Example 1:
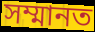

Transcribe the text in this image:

সম্মানত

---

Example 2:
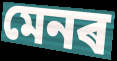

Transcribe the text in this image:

মেনৰ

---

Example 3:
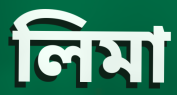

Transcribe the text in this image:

লিমা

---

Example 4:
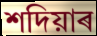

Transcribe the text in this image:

শদিয়াৰ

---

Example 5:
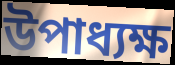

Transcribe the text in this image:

উপাধ্যক্ষ